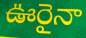
ఊరైనా